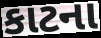
કાટના